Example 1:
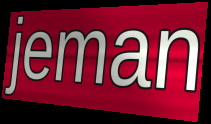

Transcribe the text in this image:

jeman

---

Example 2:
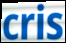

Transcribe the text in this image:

cris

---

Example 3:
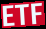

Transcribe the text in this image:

ETF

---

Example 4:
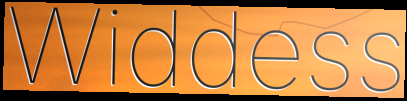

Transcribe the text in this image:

Widdess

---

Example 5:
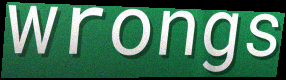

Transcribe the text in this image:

wrongs